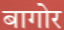
बागोर